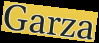
Garza